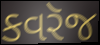
કવરૅજ